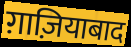
ग़ाज़ियाबाद